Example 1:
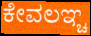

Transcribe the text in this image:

ಕೇವಲಞ್ಚ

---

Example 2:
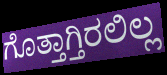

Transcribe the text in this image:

ಗೊತ್ತಾಗ್ತಿರಲಿಲ್ಲ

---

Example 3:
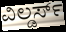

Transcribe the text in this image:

ವಿಲ್ಡರ್ಸ್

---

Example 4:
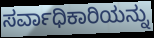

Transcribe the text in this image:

ಸರ್ವಾಧಿಕಾರಿಯನ್ನು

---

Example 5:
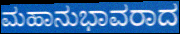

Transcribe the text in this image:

ಮಹಾನುಭಾವರಾದ